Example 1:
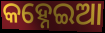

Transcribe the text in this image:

କହ୍ନେଇଆ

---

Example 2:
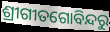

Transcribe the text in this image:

ଶ୍ରୀଗୀତଗୋବିନ୍ଦରୁ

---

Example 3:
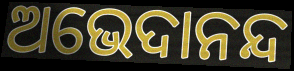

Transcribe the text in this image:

ଅଭେଦାନନ୍ଦ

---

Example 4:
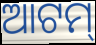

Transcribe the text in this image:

ଆଟମ୍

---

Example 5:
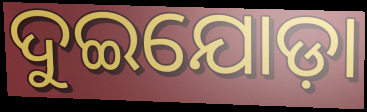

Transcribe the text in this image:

ଦୁଇଯୋଡ଼ା